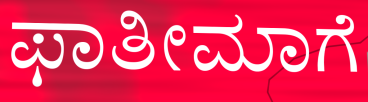
ಫಾತೀಮಾಗೆ